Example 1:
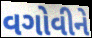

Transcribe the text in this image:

વગોવીને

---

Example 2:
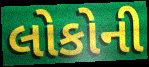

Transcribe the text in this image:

લોકોની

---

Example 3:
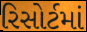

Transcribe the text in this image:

રિસોર્ટમાં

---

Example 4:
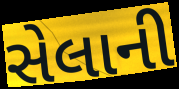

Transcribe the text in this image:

સેલાની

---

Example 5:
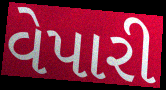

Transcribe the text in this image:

વેપારી